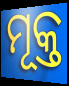
ମୂକ୍ତ